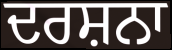
ਦਰਸ਼ਨਾ